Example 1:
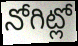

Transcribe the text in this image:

నోగిట్లో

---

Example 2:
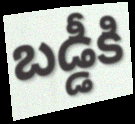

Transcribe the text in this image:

బడ్డీకి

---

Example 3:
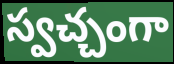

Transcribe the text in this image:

స్వచ్చంగా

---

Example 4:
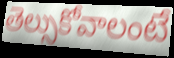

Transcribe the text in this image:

తెల్సుకోవాలంటే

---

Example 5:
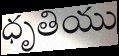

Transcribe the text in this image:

ధృతియు